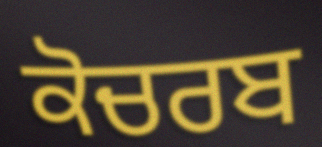
ਕੋਚਰਬ